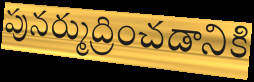
పునర్ముద్రించడానికి